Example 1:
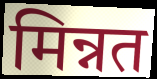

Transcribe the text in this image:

मिन्नत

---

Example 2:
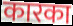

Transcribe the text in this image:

कारका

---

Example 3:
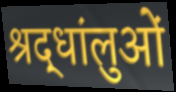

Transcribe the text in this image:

श्रद्धांलुओं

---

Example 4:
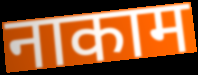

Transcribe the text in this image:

नाकाम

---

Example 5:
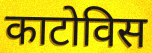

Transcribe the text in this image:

काटोविस